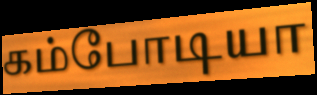
கம்போடியா